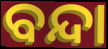
ବନ୍ଦା